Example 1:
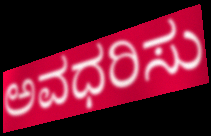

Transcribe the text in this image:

ಅವಧರಿಸು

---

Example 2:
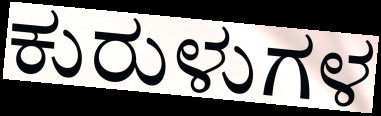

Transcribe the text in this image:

ಕುರುಳುಗಳ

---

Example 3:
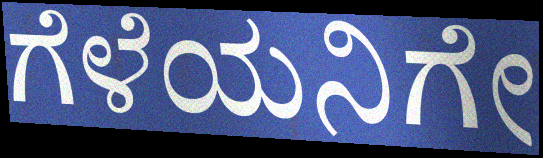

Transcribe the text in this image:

ಗೆಳೆಯನಿಗೇ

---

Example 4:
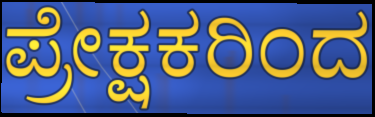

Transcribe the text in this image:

ಪ್ರೇಕ್ಷಕರಿಂದ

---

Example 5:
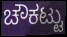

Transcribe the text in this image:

ಚೌಕಟ್ಟು